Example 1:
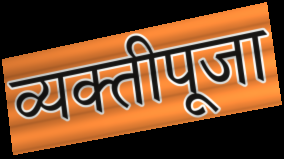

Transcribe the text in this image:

व्यक्तीपूजा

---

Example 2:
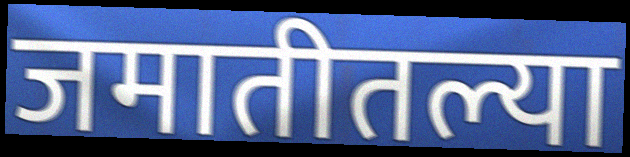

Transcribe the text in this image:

जमातीतल्या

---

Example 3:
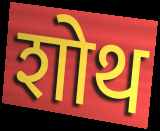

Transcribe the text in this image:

शोथ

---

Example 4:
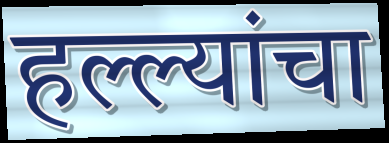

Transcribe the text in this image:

हल्ल्यांचा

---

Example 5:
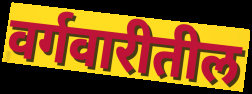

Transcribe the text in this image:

वर्गवारीतील